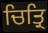
ਚਿਤ੍ਰਿ